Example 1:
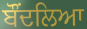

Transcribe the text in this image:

ਬੌਂਦਲਿਆ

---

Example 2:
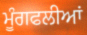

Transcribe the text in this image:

ਮੂੰਗਫਲੀਆਂ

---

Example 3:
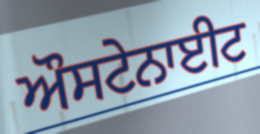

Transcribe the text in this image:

ਔਸਟੇਨਾਈਟ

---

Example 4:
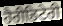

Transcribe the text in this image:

ਹੈਰੀਡਿਟੇਰੀ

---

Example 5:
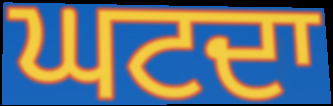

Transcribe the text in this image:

ਘਟਦਾ